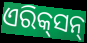
ଏରିକ୍‌ସନ୍